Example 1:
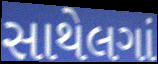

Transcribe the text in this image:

સાથેલગાં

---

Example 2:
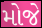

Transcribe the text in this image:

મોજે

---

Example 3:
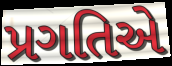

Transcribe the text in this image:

પ્રગતિએ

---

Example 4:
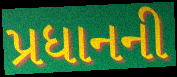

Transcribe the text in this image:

પ્રધાનની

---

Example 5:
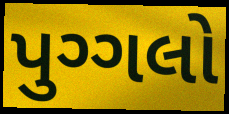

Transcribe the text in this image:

પુગ્ગલો